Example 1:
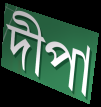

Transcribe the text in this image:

দীপা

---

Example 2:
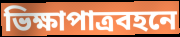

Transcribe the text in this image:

ভিক্ষাপাত্রবহনে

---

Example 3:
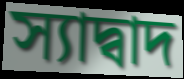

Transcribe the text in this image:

স্যাদ্বাদ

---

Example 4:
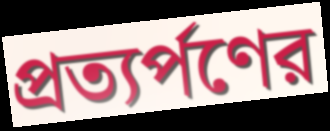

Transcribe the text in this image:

প্রত্যর্পণের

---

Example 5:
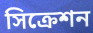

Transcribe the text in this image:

সিক্রেশন